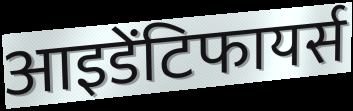
आइडेंटिफायर्स